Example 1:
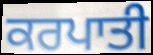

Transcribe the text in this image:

ਕਰਪਾਤੀ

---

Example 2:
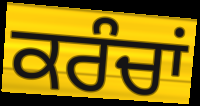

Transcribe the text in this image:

ਕਰੰਚਾਂ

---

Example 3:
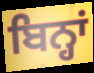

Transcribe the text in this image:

ਬਿਨ੍ਹਾਂ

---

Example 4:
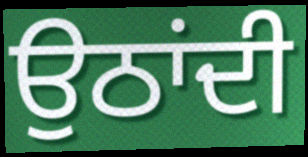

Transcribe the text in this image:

ਉਠਾਂਦੀ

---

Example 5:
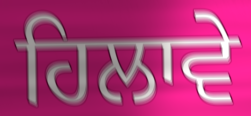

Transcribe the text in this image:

ਹਿਲਾਵੇ